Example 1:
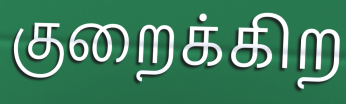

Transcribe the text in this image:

குறைக்கிற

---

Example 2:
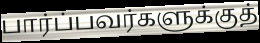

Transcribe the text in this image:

பார்ப்பவர்களுக்குத்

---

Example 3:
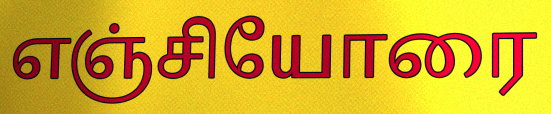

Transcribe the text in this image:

எஞ்சியோரை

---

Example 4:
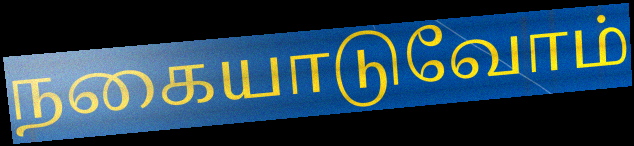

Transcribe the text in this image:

நகையாடுவோம்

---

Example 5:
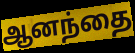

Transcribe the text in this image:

ஆனந்தை